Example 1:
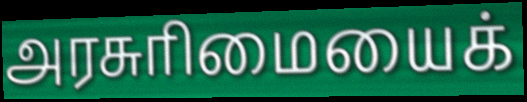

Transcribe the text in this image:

அரசுரிமையைக்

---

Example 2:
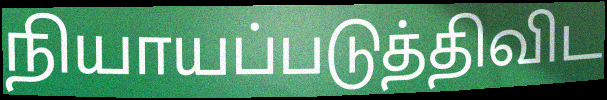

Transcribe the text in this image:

நியாயப்படுத்திவிட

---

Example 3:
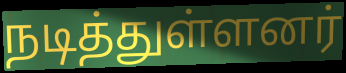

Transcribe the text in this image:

நடித்துள்ளனர்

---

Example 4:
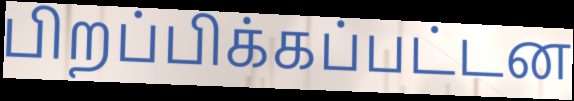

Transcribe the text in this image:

பிறப்பிக்கப்பட்டன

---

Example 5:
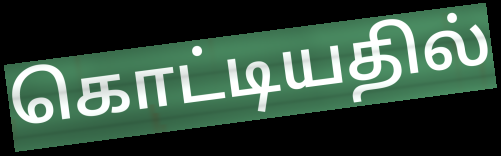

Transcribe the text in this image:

கொட்டியதில்